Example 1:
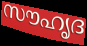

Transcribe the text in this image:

സൗഹൃദ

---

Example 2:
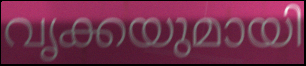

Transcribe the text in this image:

വൃക്കയുമായി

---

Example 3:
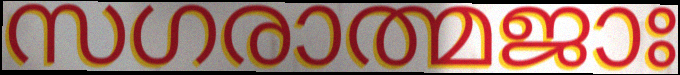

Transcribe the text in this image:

സഗരാത്മജാഃ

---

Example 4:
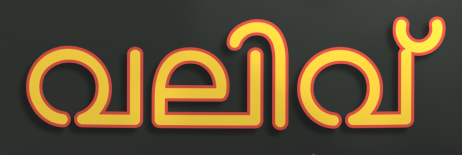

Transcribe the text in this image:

വലിവ്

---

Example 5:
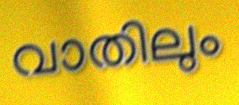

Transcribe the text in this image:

വാതിലും